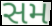
સમ